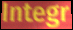
Integr